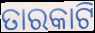
ତାରକାଟି